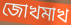
জোখমাখ